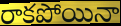
రాకపోయినా